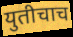
युतीचाच